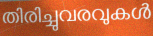
തിരിച്ചുവരവുകൾ